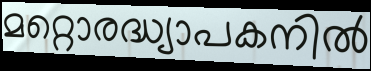
മറ്റൊരദ്ധ്യാപകനിൽ